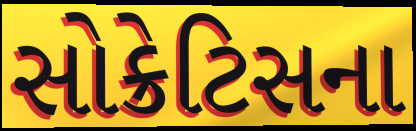
સોક્રેટિસના